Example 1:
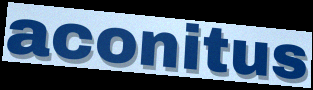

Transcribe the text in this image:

aconitus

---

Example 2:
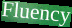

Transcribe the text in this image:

Fluency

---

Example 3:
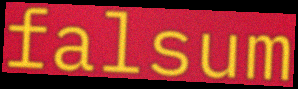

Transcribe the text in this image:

falsum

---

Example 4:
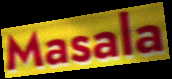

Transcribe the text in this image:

Masala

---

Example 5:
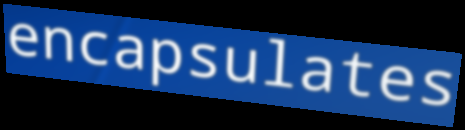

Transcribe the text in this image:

encapsulates